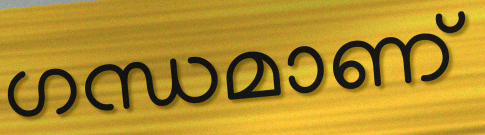
ഗന്ധമാണ്